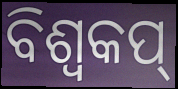
ବିଶ୍ୱକପ୍